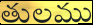
తులము